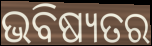
ଭବିଷ୍ୟତର